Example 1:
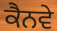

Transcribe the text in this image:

ਕੈਨਵੇ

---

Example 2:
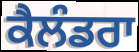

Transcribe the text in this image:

ਕੈਲੰਡਰਾ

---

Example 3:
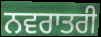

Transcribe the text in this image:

ਨਵਰਾਤਰੀ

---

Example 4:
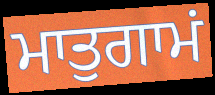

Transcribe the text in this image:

ਮਾਤੁਗਾਮਂ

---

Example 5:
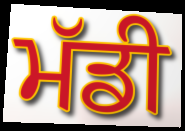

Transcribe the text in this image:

ਮੱਡੀ